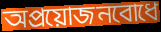
অপ্রয়োজনবোধে